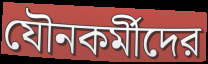
যৌনকর্মীদের